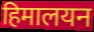
हिमालयन